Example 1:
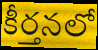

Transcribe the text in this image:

కీర్తనలో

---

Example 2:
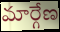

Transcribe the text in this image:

మార్గేణ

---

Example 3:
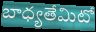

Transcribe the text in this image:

బాధ్యతేమిటో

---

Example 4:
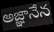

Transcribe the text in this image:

అజ్ఞానేన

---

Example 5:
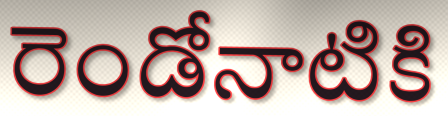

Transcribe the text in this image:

రెండోనాటికి